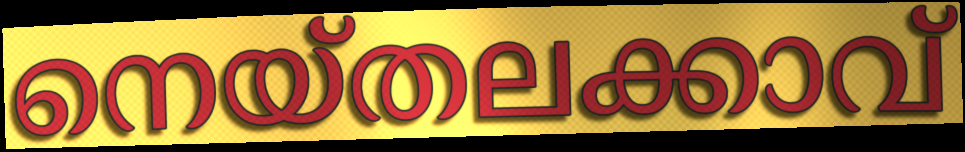
നെയ്തലക്കാവ്